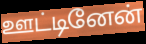
ஊட்டினேன்